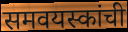
समवयस्कांची